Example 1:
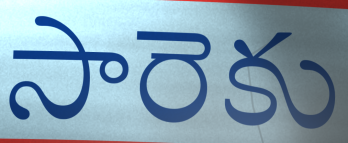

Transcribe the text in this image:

సారెకు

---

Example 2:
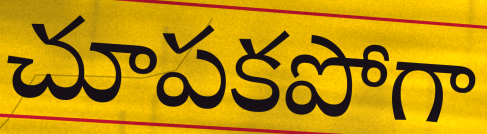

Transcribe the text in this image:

చూపకపోగా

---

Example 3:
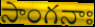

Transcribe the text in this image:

సాంగనాః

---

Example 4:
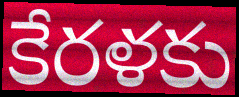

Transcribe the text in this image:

కేరళకు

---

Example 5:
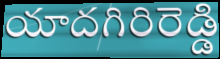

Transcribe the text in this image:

యాదగిరిరెడ్డి